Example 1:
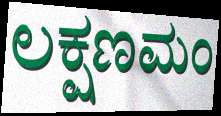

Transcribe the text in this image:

ಲಕ್ಷಣಮಂ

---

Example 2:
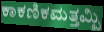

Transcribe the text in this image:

ಕಾಕಣಿಕಮತ್ತಮ್ಪಿ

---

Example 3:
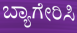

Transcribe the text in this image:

ಬ್ಯಾಗೇರಿಸಿ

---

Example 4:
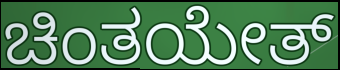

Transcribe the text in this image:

ಚಿಂತಯೇತ್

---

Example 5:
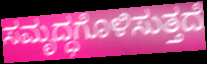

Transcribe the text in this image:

ಸಮೃದ್ಧಗೊಳಿಸುತ್ತದೆ